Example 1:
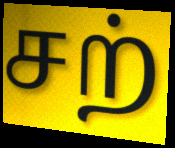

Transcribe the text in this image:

சற்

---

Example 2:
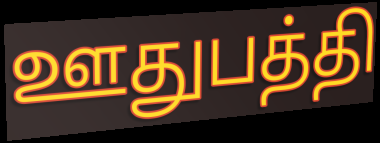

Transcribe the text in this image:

ஊதுபத்தி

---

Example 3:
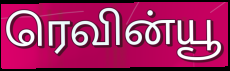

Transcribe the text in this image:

ரெவின்யூ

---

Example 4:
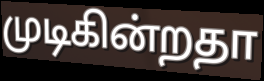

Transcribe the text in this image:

முடிகின்றதா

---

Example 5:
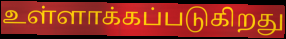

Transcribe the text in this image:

உள்ளாக்கப்படுகிறது